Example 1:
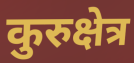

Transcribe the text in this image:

कुरुक्षेत्र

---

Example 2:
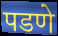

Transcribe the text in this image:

पडणे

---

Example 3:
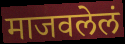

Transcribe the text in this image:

माजवलेलं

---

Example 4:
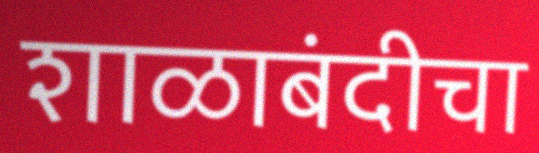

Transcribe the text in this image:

शाळाबंदीचा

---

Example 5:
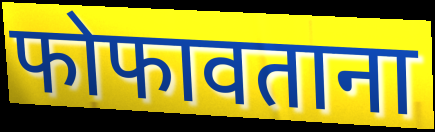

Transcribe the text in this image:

फोफावताना